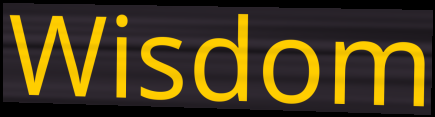
Wisdom